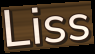
Liss